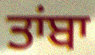
ਤਾਂਬਾ